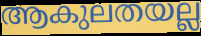
ആകുലതയല്ല